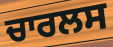
ਚਾਰਲਸ